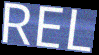
REL